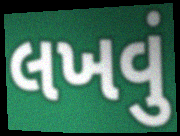
લખવું